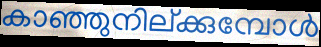
കാഞ്ഞുനില്ക്കുമ്പോൾ